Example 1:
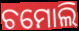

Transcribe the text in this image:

ଚମୋଲି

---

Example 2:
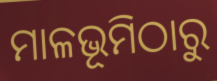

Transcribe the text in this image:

ମାଳଭୂମିଠାରୁ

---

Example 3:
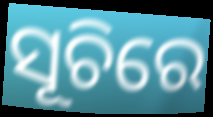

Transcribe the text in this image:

ସୂଚିରେ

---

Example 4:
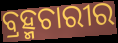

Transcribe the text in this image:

ବ୍ରହ୍ମଚାରୀର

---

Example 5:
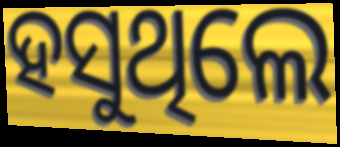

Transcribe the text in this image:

ହସୁଥିଲେ